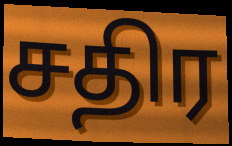
சதிர